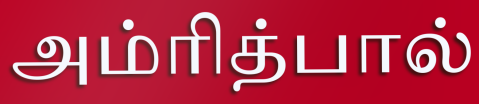
அம்ரித்பால்